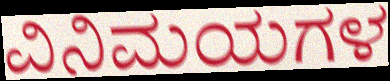
ವಿನಿಮಯಗಳ